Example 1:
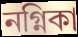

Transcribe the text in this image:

নগ্নিকা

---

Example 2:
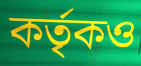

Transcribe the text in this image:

কর্তৃকও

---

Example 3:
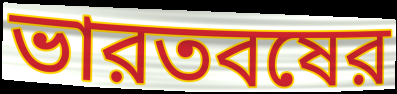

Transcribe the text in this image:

ভারতবষের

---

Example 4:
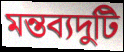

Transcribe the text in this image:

মন্তব্যদুটি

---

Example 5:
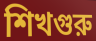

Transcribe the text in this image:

শিখগুরু